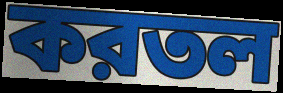
করতল